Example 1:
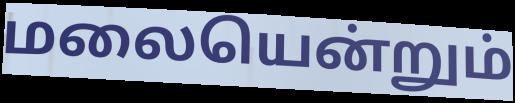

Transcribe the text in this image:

மலையென்றும்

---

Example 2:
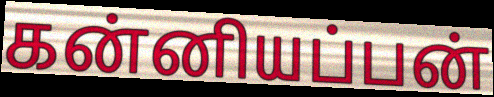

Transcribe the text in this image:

கன்னியப்பன்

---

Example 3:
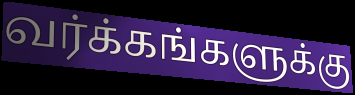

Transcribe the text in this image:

வர்க்கங்களுக்கு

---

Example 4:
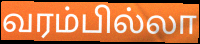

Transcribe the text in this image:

வரம்பில்லா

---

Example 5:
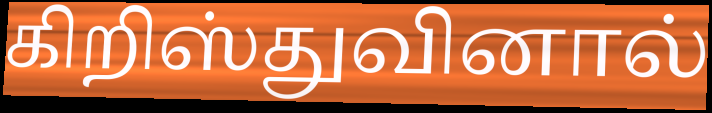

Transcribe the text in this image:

கிறிஸ்துவினால்